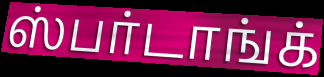
ஸ்பர்டாங்க்